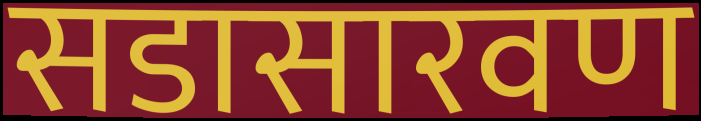
सडासारवण